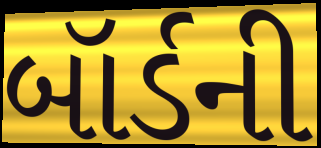
બૉર્ડની